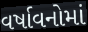
વર્ષાવનોમાં